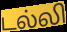
டல்லி